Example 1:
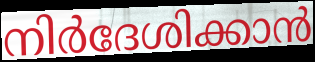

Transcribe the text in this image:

നിർദേശിക്കാൻ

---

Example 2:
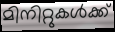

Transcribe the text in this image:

മിനിറ്റുകൾക്ക്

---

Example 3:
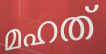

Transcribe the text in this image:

മഹത്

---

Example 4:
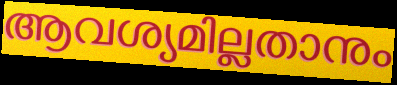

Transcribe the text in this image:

ആവശ്യമില്ലതാനും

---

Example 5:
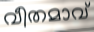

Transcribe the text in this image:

വീതമാവ്